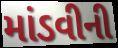
માંડવીની